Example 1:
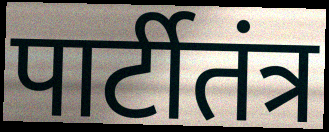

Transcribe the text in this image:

पार्टीतंत्र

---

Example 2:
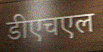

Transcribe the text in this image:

डीएचएल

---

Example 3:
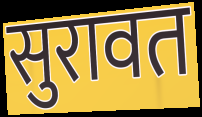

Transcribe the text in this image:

सुरावत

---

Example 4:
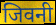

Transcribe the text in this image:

जिवनी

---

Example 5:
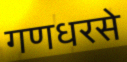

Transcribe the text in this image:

गणधरसे